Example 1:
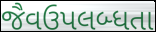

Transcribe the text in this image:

જૈવઉપલબ્ધતા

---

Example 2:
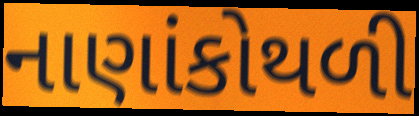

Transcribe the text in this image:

નાણાંકોથળી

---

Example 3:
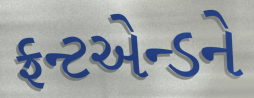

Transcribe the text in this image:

ફ્રન્ટએન્ડને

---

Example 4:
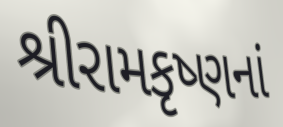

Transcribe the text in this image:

શ્રીરામકૃષ્ણનાં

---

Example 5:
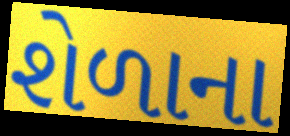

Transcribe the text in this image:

શેળાના